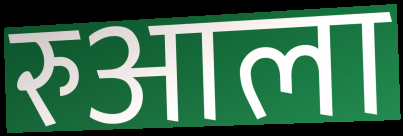
रुआला